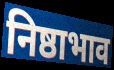
निष्ठाभाव